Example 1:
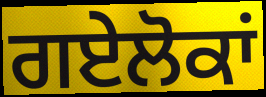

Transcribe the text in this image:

ਗਏਲੋਕਾਂ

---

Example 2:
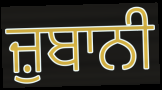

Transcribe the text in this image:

ਜ਼ੁਬਾਨੀ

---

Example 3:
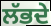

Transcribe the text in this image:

ਲੱਭਦੇ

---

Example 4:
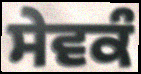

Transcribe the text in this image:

ਸੇਵਕੰ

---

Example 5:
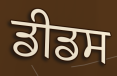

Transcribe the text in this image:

ਡੀਡਸ